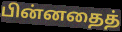
பின்னதைத்